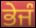
ਭੇਜੰ